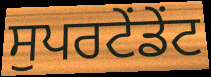
ਸੁਪਰਟੇਂਡੇਂਟ